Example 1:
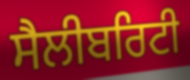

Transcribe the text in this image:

ਸੈਲੀਬਰਿਟੀ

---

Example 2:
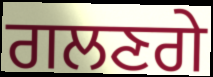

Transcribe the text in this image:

ਗਲਣਗੇ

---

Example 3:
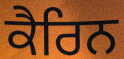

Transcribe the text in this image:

ਕੈਰਿਨ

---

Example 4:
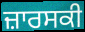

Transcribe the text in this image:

ਜ਼ਾਰਸਕੀ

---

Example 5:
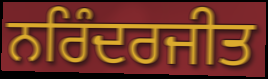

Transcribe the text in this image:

ਨਰਿੰਦਰਜੀਤ